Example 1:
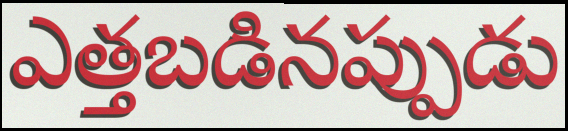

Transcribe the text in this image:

ఎత్తబడినప్పుడు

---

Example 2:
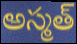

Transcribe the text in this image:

అస్మత్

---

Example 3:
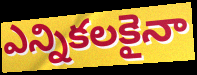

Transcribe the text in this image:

ఎన్నికలకైనా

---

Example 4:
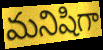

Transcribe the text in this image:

మనిషిగా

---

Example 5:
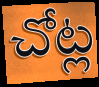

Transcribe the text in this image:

చోట్ల